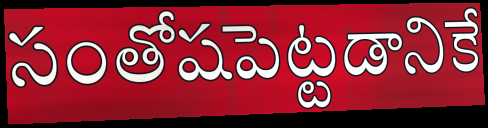
సంతోషపెట్టడానికే